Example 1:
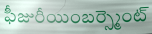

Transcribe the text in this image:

ఫీజురీయింబర్స్మెంట్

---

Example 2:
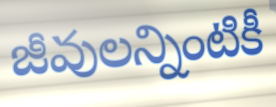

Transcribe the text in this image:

జీవులన్నింటికీ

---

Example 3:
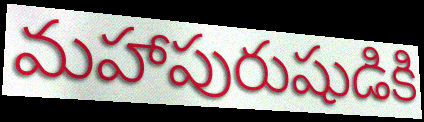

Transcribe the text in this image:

మహాపురుషుడికి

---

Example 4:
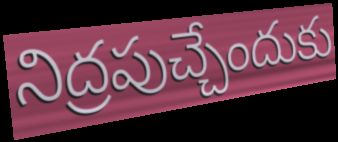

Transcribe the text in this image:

నిద్రపుచ్చేందుకు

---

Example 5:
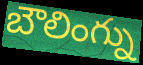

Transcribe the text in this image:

బౌలింగ్ను